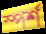
স্পৰ্শ